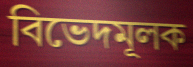
বিভেদমূলক